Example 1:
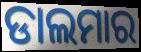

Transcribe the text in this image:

ଡାଲମାର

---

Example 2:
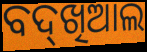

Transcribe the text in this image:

ବଦ୍‌ଖିଆଲ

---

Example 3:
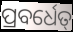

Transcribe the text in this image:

ପ୍ରବର୍ଧେତ୍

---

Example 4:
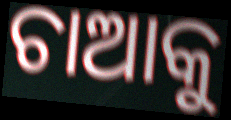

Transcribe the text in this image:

ଚାଆକୁ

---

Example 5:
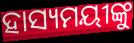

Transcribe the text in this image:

ହାସ୍ୟମୟୀଙ୍କୁ